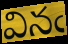
వినఁ